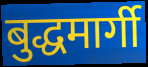
बुद्धमार्गी